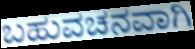
ಬಹುವಚನವಾಗಿ